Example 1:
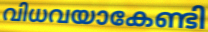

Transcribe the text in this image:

വിധവയാകേണ്ടി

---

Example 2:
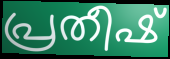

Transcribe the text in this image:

പ്രതീഷ്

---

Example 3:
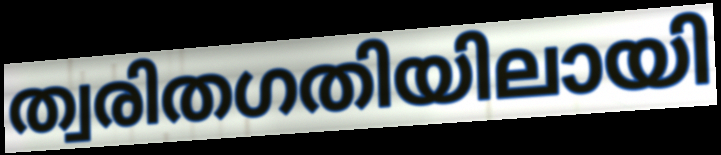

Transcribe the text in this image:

ത്വരിതഗതിയിലായി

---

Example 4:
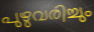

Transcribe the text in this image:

പുഴുവരിച്ചും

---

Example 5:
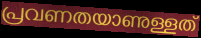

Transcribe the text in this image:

പ്രവണതയാണുള്ളത്